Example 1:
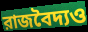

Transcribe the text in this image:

রাজবৈদ্যও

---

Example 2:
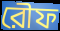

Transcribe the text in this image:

রৌফ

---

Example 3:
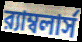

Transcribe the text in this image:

র‍্যাম্বলার্স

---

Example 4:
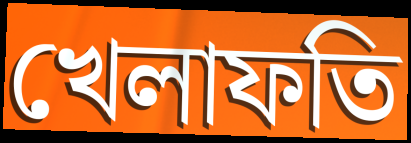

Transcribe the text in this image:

খেলাফতি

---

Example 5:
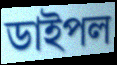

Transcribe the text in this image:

ডাইপল